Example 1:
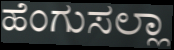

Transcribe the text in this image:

ಹೆಂಗುಸಲ್ಲಾ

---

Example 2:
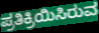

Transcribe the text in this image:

ಪ್ರತಿಕ್ರಿಯಿಸಿರುವ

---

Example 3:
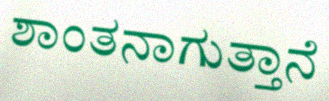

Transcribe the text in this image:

ಶಾಂತನಾಗುತ್ತಾನೆ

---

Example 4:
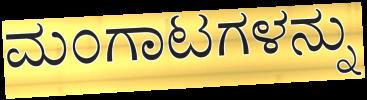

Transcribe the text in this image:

ಮಂಗಾಟಗಳನ್ನು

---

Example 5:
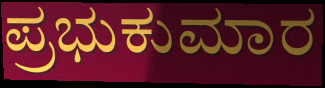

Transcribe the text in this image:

ಪ್ರಭುಕುಮಾರ